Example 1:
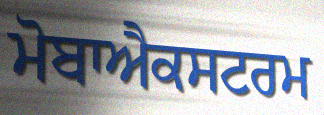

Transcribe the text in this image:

ਮੋਬਾਐਕਸਟਰਮ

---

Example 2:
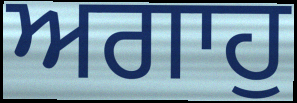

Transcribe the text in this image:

ਅਗਾਹੁ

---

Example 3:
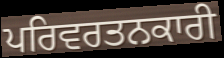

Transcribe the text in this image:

ਪਰਿਵਰਤਨਕਾਰੀ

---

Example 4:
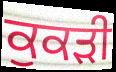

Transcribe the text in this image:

ਕੁਕੜੀ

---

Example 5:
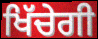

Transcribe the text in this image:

ਖਿੱਚੇਗੀ